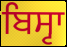
ਬਿਸ੍ਟਾ